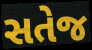
સતેજ